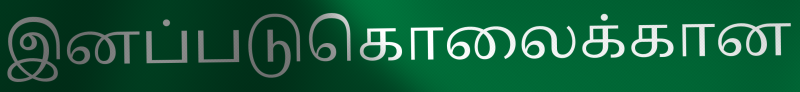
இனப்படுகொலைக்கான